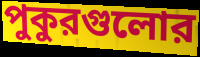
পুকুরগুলোর